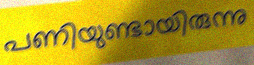
പണിയുണ്ടായിരുന്നു